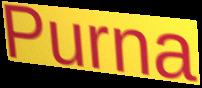
Purna